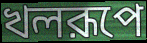
খলরূপে